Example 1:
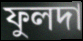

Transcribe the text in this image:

ফুলদা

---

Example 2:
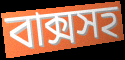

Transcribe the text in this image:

বাক্সসহ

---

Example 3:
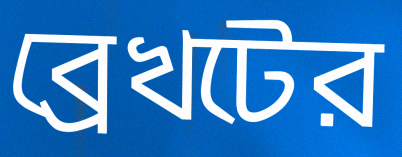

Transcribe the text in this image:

ব্রেখটের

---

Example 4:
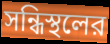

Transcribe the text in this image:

সন্ধিস্থলের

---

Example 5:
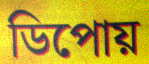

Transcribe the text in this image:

ডিপোয়